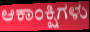
ಆಕಾಂಕ್ಷಿಗಳು